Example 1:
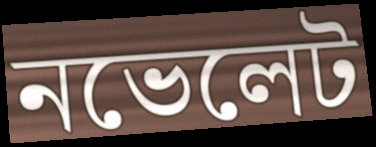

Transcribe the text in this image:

নভেলেট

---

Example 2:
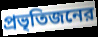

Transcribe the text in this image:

প্রভৃতিজনের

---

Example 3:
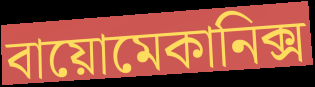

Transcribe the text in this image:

বায়োমেকানিক্স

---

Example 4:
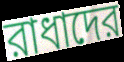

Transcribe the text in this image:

রাধাদের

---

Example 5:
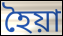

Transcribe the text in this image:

হৈয়া